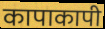
कापाकापी